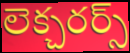
లెక్చరర్స్